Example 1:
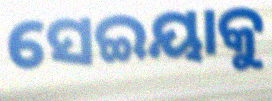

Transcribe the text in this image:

ସେଇୟାକୁ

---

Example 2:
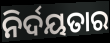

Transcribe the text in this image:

ନିର୍ଦୟତାର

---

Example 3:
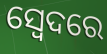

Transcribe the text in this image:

ସ୍ଵେଦରେ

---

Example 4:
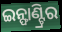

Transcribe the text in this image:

ଇନ୍ଫାଣ୍ଟ୍ରିର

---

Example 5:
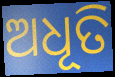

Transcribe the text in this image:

ଅଧୂତି